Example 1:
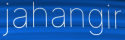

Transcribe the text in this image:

jahangir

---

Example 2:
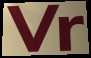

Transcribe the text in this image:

Vr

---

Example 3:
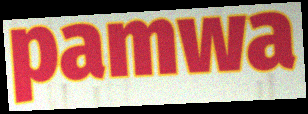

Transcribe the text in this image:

pamwa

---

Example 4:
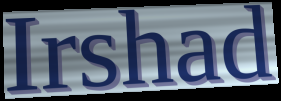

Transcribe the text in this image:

Irshad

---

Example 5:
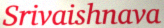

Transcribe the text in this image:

Srivaishnava